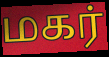
மகர்